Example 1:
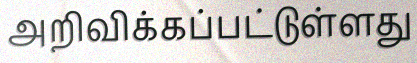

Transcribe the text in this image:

அறிவிக்கப்பட்டுள்ளது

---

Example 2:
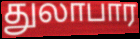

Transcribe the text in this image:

துலாபார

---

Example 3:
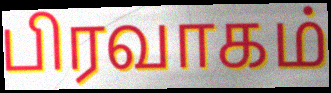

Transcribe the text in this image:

பிரவாகம்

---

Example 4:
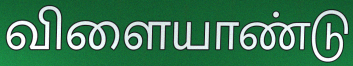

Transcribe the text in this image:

விளையாண்டு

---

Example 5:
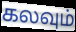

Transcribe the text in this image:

கலவும்